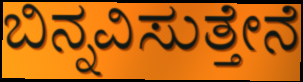
ಬಿನ್ನವಿಸುತ್ತೇನೆ